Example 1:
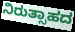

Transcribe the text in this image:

ನಿರುತ್ಸಾಹದ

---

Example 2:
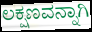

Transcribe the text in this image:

ಲಕ್ಷಣವನ್ನಾಗಿ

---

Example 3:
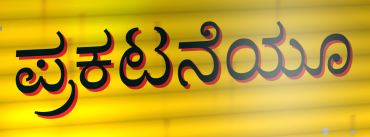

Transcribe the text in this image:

ಪ್ರಕಟನೆಯೂ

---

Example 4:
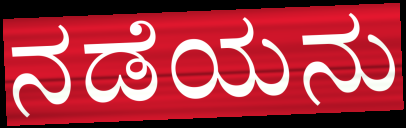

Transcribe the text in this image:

ನಡೆಯನು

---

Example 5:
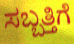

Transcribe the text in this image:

ಸಬ್ಬತ್ತಿಗೆ